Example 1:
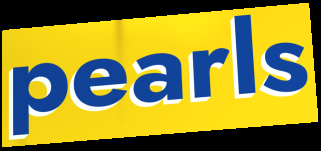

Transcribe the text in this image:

pearls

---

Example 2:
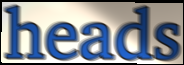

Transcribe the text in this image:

heads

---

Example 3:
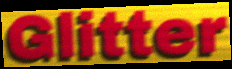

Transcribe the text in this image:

Glitter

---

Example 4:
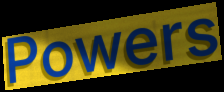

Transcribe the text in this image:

Powers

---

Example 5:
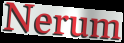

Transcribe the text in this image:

Nerum